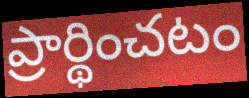
ప్రార్థించటం